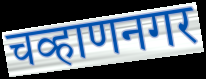
चव्हाणनगर